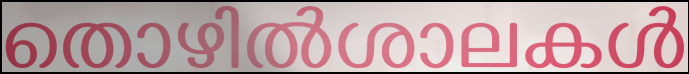
തൊഴിൽശാലകൾ